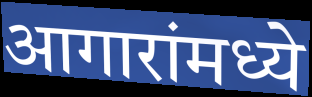
आगारांमध्ये